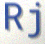
Rj